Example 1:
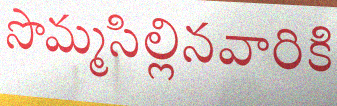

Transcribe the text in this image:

సొమ్మసిల్లినవారికి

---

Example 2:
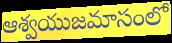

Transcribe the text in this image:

ఆశ్వయుజమాసంలో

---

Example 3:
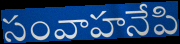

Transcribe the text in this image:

సంవాహనేపి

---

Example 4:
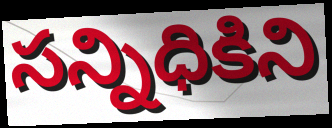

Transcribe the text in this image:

సన్నిధికిని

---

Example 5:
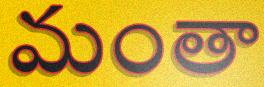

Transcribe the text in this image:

మంతా